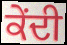
ਕੇਂਦੀ